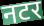
नटर